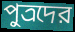
পুত্রদের